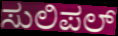
ಸುಲಿಪಲ್